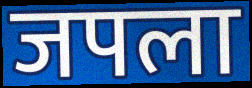
जपला